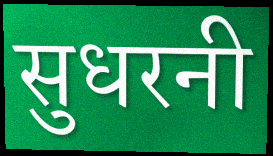
सुधरनी